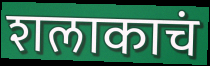
शलाकाचं